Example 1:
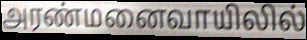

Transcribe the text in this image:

அரண்மனைவாயிலில்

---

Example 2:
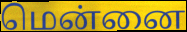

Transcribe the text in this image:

மென்னை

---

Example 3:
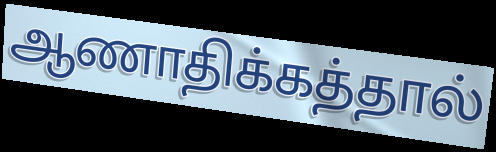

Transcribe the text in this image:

ஆணாதிக்கத்தால்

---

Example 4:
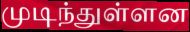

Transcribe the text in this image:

முடிந்துள்ளன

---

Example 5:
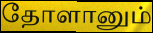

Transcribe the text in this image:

தோளானும்